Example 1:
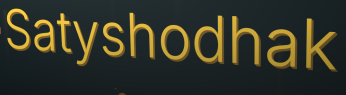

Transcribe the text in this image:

Satyshodhak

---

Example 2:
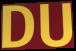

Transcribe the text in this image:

DU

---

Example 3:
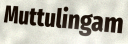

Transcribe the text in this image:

Muttulingam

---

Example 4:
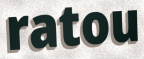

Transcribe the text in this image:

ratou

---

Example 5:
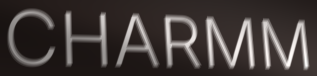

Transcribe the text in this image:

CHARMM